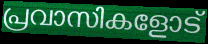
പ്രവാസികളോട്